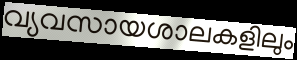
വ്യവസായശാലകളിലും